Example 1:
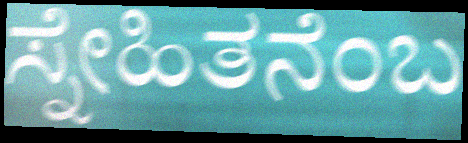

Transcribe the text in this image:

ಸ್ನೇಹಿತನೆಂಬ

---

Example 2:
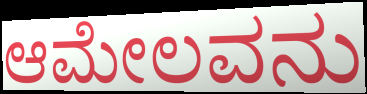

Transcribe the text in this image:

ಆಮೇಲವನು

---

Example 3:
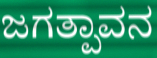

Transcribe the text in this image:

ಜಗತ್ಪಾವನ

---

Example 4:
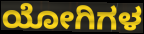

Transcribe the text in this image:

ಯೋಗಿಗಳ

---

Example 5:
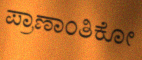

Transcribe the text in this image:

ಪ್ರಾಣಾಂತಿಕೋ